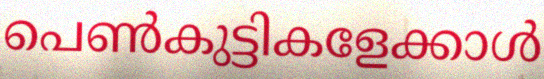
പെൺകുട്ടികളേക്കാൾ